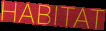
HABITAT